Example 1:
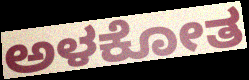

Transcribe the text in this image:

ಅಳಕೋತ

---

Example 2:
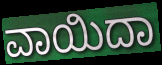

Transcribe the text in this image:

ವಾಯಿದಾ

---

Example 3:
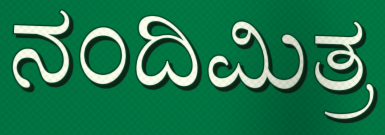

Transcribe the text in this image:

ನಂದಿಮಿತ್ರ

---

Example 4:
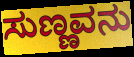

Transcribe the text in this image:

ಸುಣ್ಣವನು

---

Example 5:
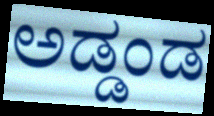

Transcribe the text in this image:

ಅಡ್ಡಂಡ